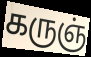
கருஞ்